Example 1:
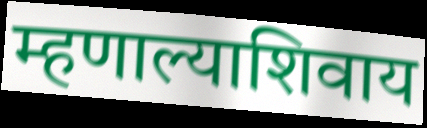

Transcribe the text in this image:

म्हणाल्याशिवाय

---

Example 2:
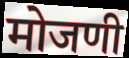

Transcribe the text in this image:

मोजणी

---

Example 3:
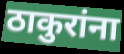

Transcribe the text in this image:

ठाकुरांना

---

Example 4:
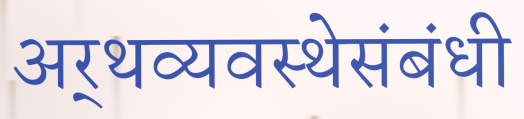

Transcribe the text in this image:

अर्थव्यवस्थेसंबंधी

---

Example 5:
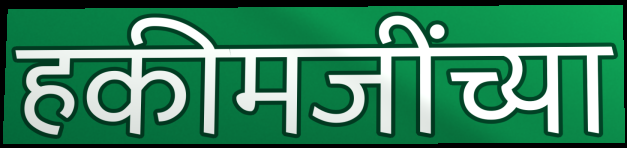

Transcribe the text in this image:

हकीमजींच्या